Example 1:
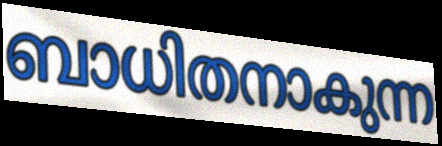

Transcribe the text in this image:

ബാധിതനാകുന്ന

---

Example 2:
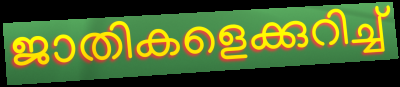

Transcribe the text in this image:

ജാതികളെക്കുറിച്ച്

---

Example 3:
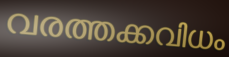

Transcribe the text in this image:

വരത്തക്കവിധം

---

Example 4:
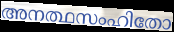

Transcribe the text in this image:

അനത്ഥസംഹിതോ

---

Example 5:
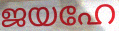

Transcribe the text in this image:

ജയഹേ